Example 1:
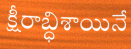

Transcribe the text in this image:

క్షీరాబ్ధిశాయినే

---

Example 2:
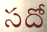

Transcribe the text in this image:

సదో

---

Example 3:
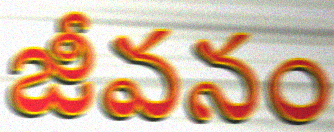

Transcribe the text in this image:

జీవనం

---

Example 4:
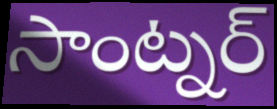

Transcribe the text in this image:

సాంట్నర్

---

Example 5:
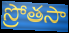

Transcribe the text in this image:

స్రోతసా